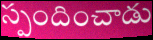
స్పందించాడు